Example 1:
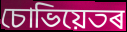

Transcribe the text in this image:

চোভিয়েতৰ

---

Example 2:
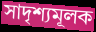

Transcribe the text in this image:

সাদৃশ্যমূলক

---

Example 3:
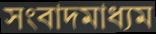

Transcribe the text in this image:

সংবাদমাধ্যম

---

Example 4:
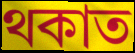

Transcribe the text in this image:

থকাত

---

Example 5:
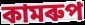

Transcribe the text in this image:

কামৰুপ